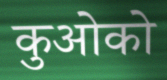
कुओको